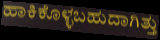
ಹಾಕಿಕೊಳ್ಳಬಹುದಾಗಿತ್ತು